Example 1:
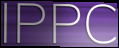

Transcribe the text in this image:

IPPC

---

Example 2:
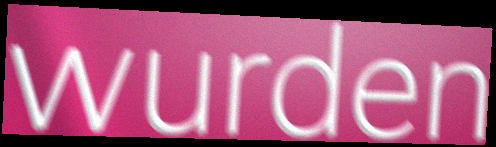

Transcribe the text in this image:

wurden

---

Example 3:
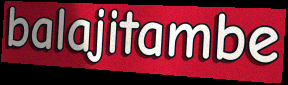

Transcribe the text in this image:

balajitambe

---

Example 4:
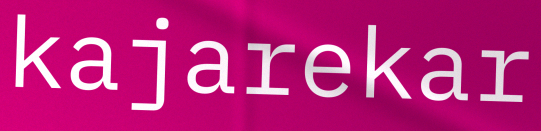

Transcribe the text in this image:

kajarekar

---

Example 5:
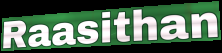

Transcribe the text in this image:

Raasithan